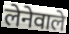
लेनेवाले